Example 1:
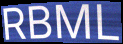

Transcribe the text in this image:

RBML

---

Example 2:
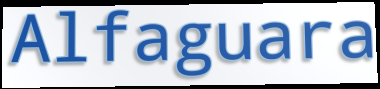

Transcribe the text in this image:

Alfaguara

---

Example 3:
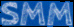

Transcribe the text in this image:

SMM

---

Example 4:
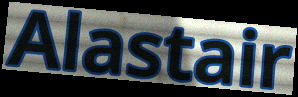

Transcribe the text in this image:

Alastair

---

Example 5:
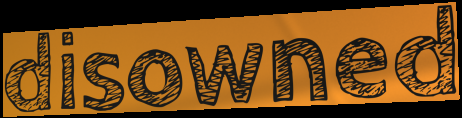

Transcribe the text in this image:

disowned